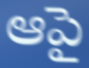
ఆపై